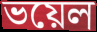
ভয়েল